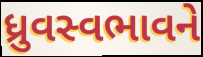
ધ્રુવસ્વભાવને